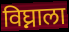
विघ्नाला